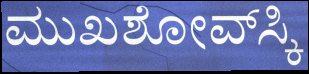
ಮುಖಶೋವ್‌ಸ್ಕಿ